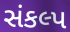
સંકલ્પ